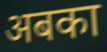
अबका